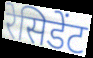
रेसिडेंट